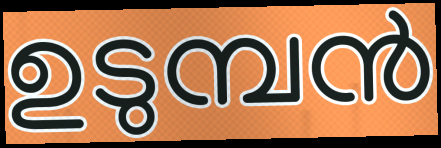
ഉടുമ്പൻ